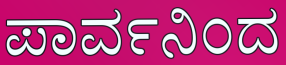
ಪಾರ್ವನಿಂದ